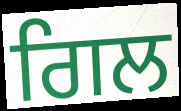
ਗਿਲ